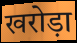
खरोड़ा